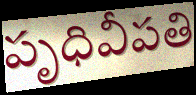
పృధివీపతి